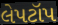
લેપટૉપ